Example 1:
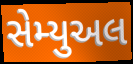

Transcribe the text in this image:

સેમ્યુઅલ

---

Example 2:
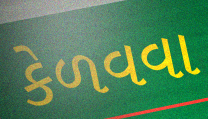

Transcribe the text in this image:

કેળવવા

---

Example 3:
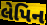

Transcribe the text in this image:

લેપિન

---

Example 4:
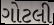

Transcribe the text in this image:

ગોટલી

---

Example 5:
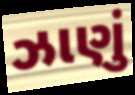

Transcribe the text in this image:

ઝાણું